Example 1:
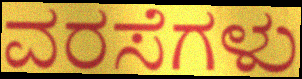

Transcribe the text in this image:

ವರಸೆಗಳು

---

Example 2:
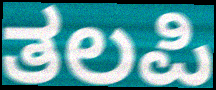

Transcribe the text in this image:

ತಲಪಿ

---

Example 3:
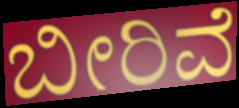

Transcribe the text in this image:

ಬೀರಿವೆ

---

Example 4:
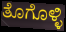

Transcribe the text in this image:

ತೊಗೊಳ್ಳಿ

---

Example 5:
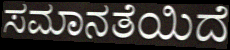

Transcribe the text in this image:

ಸಮಾನತೆಯಿದೆ